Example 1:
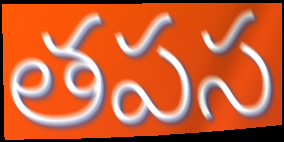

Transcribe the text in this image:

తపస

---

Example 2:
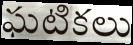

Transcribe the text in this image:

ఘటికలు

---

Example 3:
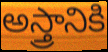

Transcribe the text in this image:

అస్త్రానికి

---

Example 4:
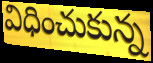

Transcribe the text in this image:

విధించుకున్న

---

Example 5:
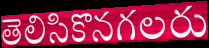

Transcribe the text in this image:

తెలిసికొనగలరు